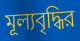
মূল্যবৃদ্ধির